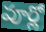
వూర్లో